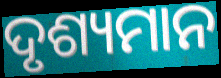
ଦୃଶ୍ୟମାନ